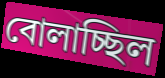
বোলাচ্ছিল